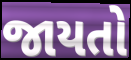
જાયતો